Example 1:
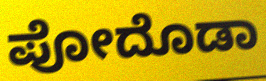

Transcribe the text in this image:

ಪೋದೊಡಾ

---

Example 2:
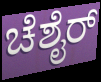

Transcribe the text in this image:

ಚೆಶೈರ್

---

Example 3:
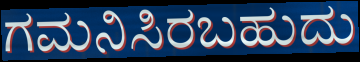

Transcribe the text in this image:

ಗಮನಿಸಿರಬಹುದು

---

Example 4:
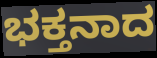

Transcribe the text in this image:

ಭಕ್ತನಾದ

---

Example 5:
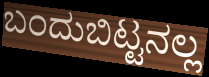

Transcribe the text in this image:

ಬಂದುಬಿಟ್ಟನಲ್ಲ